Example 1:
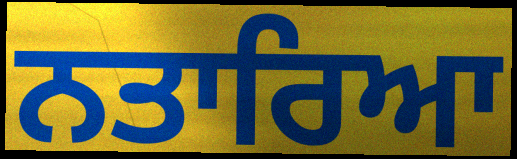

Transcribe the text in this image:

ਨਤਾਰਿਆ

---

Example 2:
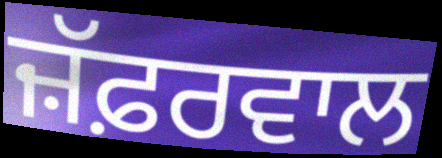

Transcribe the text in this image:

ਜ਼ੱਫ਼ਰਵਾਲ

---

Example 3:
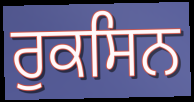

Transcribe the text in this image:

ਰੁਕਸਿਨ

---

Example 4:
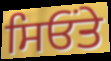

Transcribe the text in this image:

ਸਿਓਂਤੇ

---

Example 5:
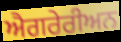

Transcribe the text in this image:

ਐਗਰੇਰੀਅਨ